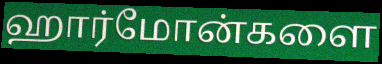
ஹார்மோன்களை